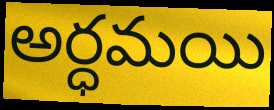
అర్ధమయి